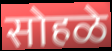
सोहळे